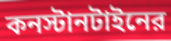
কনস্টানটাইনের